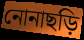
নোনাছড়ি